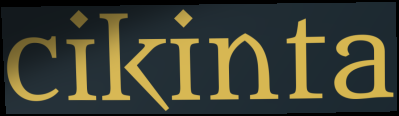
cikinta